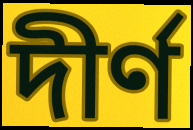
দীর্ণ